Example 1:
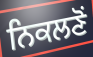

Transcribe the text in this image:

ਨਿਕਲਣੋਂ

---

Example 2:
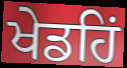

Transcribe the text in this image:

ਖੇਡਹਿਂ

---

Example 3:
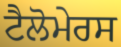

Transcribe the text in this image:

ਟੈਲੋਮੇਰਸ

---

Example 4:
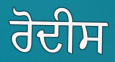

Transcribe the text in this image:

ਰੋਦੀਸ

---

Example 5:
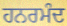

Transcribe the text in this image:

ਹਨਰਮੰਦ